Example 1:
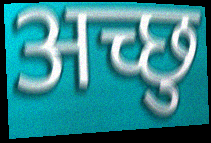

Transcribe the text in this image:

अच्छु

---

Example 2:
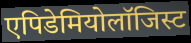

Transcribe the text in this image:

एपिडेमियोलॉजिस्ट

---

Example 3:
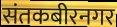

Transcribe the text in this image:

संतकबीरनगर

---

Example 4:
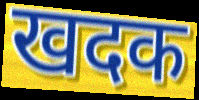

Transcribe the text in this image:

खदक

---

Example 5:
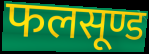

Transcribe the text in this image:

फलसूण्ड